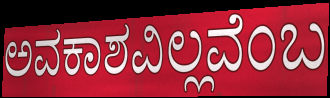
ಅವಕಾಶವಿಲ್ಲವೆಂಬ